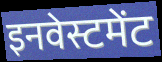
इनवेस्‍टमेंट